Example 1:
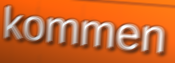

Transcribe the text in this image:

kommen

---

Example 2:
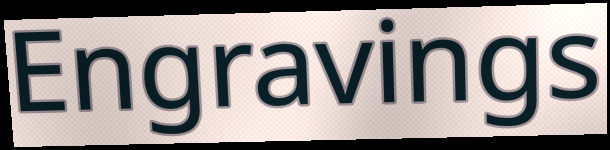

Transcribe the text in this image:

Engravings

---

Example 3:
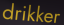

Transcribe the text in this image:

drikker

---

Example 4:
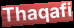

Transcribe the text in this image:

Thaqafi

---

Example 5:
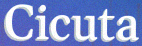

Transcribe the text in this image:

Cicuta